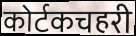
कोर्टकचहरी